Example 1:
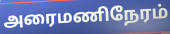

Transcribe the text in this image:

அரைமணிநேரம்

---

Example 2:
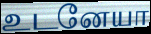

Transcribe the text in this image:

உடனேயா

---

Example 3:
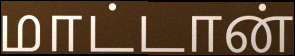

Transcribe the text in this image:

மாட்டான்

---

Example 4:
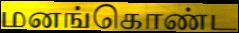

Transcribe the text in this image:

மனங்கொண்ட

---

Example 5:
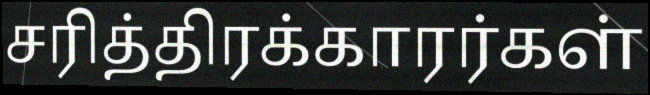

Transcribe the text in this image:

சரித்திரக்காரர்கள்